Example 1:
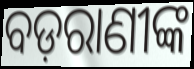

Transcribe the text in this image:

ବଡ଼ରାଣୀଙ୍କ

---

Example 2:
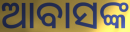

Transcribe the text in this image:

ଆବାସଙ୍କ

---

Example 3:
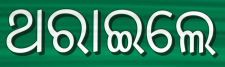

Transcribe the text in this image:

ଥରାଇଲେ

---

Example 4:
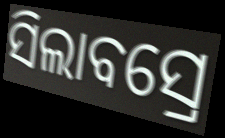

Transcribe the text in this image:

ସିଲାବସ୍ରେ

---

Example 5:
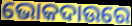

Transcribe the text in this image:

ଭୋକଦାଉରେ